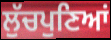
ਲੁੱਚਪੁਣਿਆਂ